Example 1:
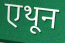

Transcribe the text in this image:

एथून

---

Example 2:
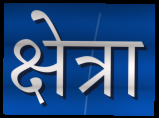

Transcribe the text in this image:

क्षेत्रा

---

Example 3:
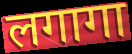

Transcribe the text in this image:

लगागा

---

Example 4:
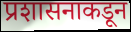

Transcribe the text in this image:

प्रशासनाकडून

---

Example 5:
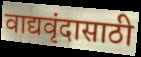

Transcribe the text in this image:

वाद्यवृंदासाठी